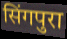
सिंगपुरा